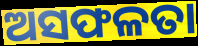
ଅସଫଳତା